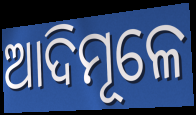
ଆଦିମୂଳେ